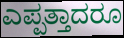
ಎಪ್ಪತ್ತಾದರೂ